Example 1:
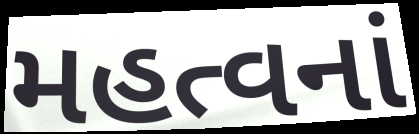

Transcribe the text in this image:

મહત્વનાં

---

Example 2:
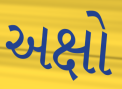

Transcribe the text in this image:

અક્ષો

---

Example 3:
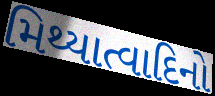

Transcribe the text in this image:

મિથ્યાત્વાદિનો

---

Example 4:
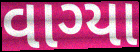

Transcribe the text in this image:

વાગ્યા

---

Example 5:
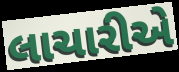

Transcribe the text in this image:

લાચારીએ